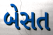
બેસત